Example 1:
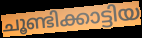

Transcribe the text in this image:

ചൂണ്ടിക്കാട്ടിയ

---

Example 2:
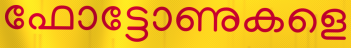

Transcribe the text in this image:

ഫോട്ടോണുകളെ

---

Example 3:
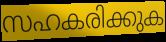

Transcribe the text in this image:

സഹകരിക്കുക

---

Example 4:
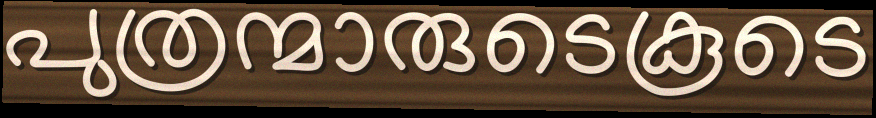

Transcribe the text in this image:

പുത്രന്മാരുടെകൂടെ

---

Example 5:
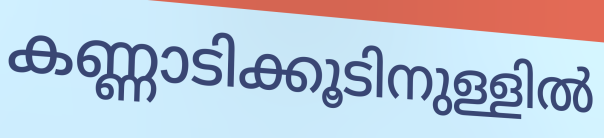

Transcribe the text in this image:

കണ്ണാടിക്കൂടിനുള്ളിൽ